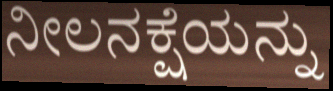
ನೀಲನಕ್ಷೆಯನ್ನು